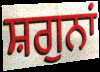
ਸ਼ਗੁਨਾਂ